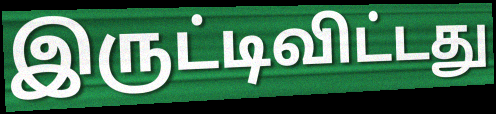
இருட்டிவிட்டது